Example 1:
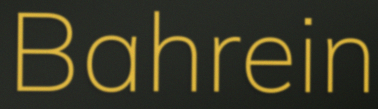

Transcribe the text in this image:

Bahrein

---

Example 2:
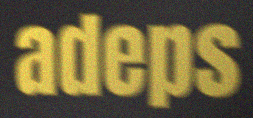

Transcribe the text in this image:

adeps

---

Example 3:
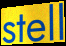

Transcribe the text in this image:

stell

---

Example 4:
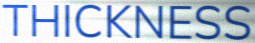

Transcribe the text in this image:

THICKNESS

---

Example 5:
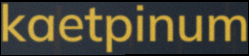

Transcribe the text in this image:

kaetpinum